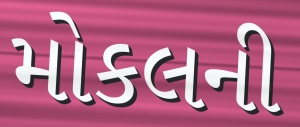
મોકલની